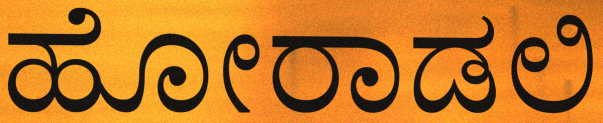
ಹೋರಾಡಲಿ